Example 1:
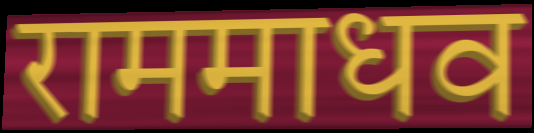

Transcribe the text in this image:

राममाधव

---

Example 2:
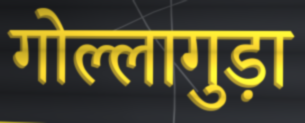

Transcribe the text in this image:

गोल्लागुड़ा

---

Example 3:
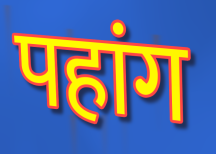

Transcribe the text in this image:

पहांग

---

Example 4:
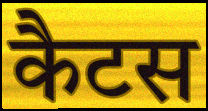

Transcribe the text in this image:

कैटस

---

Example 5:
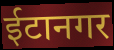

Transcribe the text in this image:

ईटानगर